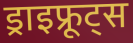
ड्राइफ्रूट्स